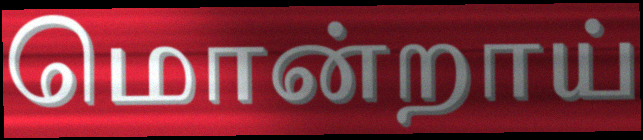
மொன்றாய்